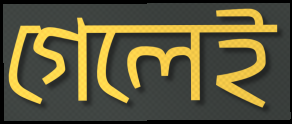
গেলেই